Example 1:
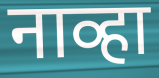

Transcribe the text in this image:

नाव्हा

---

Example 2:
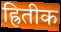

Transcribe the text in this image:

ह्रितीक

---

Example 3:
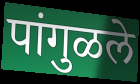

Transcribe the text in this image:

पांगुळले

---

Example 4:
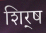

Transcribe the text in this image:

शिर्ष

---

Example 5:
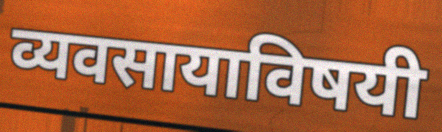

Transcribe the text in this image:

व्यवसायाविषयी